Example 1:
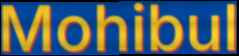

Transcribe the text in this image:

Mohibul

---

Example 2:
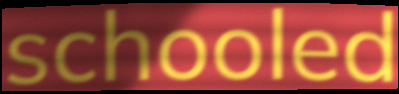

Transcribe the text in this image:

schooled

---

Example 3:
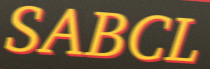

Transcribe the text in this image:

SABCL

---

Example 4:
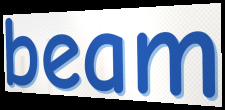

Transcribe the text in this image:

beam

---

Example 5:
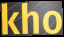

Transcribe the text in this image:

kho